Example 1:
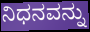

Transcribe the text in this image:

ನಿಧನವನ್ನು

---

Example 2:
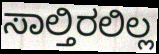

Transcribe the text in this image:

ಸಾಲ್ತಿರಲಿಲ್ಲ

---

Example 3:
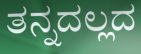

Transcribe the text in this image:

ತನ್ನದಲ್ಲದ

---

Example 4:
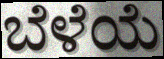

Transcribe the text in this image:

ಬೆಳೆಯೆ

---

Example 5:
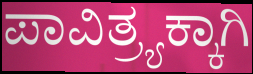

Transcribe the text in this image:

ಪಾವಿತ್ರ್ಯಕ್ಕಾಗಿ